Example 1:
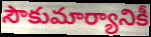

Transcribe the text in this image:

సౌకుమార్యానికీ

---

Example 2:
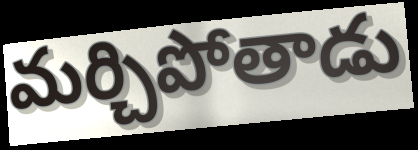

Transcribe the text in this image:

మర్చిపోతాడు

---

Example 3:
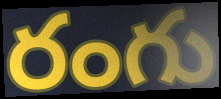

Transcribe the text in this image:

రంగు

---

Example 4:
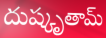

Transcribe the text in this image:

దుష్కృతామ్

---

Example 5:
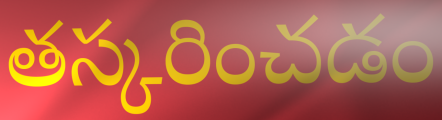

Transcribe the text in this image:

తస్కరించడం